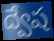
ద్వేష